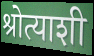
श्रोत्याशी